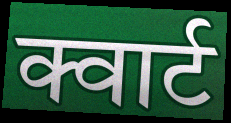
क्वार्ट